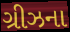
ગ્રીઝના